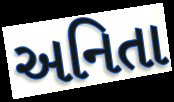
અનિતા